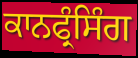
ਕਾਨਫ੍ਰੰਸਿੰਗ